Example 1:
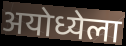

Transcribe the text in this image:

अयोध्येला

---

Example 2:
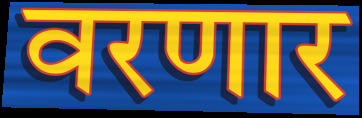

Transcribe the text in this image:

वरणार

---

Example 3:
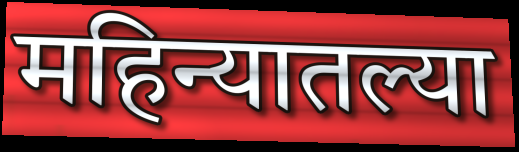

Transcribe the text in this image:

महिन्यातल्या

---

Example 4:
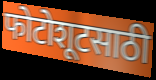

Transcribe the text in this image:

फोटोशूटसाठी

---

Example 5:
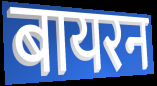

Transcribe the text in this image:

बायरन